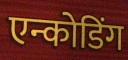
एन्कोडिंग